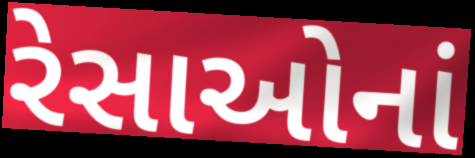
રેસાઓનાં